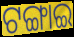
ଟଙ୍ଗାଇ